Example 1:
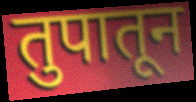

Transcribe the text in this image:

तुपातून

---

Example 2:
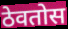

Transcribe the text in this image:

ठेवतोस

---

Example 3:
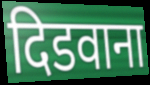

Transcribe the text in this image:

दिडवाना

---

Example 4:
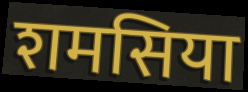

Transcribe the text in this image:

शमसिया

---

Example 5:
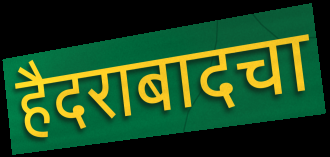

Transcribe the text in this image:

हैदराबादचा